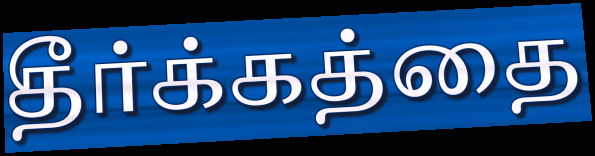
தீர்க்கத்தை